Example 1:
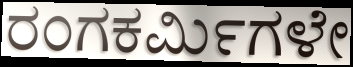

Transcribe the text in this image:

ರಂಗಕರ್ಮಿಗಳೇ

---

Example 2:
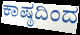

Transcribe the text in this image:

ಕಾಷ್ಠದಿಂದ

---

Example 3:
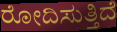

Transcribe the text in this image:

ರೋದಿಸುತ್ತಿದೆ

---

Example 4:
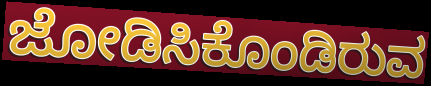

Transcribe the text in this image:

ಜೋಡಿಸಿಕೊಂಡಿರುವ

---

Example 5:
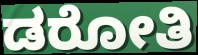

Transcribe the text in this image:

ಡರೋತಿ